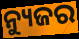
ନ୍ୟୁଜର